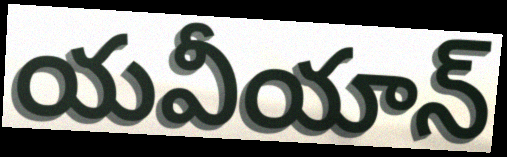
యవీయాన్